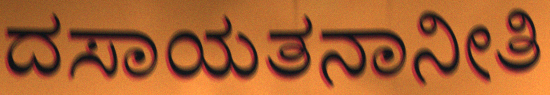
ದಸಾಯತನಾನೀತಿ